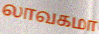
லாவகமா